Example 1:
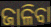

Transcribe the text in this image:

ଜାଳିବା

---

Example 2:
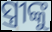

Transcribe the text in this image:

ସ୍ତ୍ରୀଙ୍କୁ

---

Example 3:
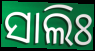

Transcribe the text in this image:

ସାଲିଃ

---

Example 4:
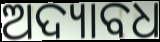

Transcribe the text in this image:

ଅଦ୍ୟାବଧ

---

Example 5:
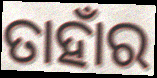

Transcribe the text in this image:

ତାହାଁର